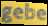
gebe